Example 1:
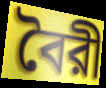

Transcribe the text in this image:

বৈরী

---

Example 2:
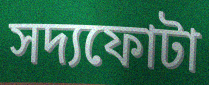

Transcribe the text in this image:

সদ্যফোটা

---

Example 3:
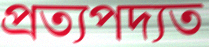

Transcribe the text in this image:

প্রত্যপদ্যত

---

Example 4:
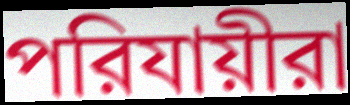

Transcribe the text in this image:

পরিযায়ীরা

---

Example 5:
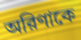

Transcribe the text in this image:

অরিণাকে